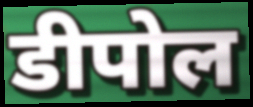
डीपोल